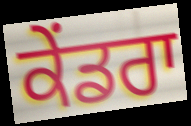
ਕੇਂਡਰਾ